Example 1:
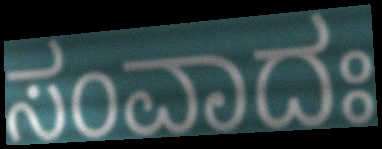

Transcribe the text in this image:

ಸಂವಾದಃ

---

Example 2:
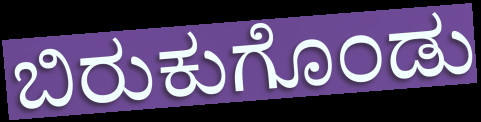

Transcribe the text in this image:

ಬಿರುಕುಗೊಂಡು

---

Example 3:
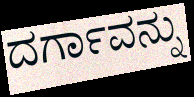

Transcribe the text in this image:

ದರ್ಗಾವನ್ನು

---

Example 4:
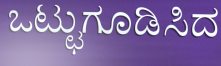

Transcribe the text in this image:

ಒಟ್ಟುಗೂಡಿಸಿದ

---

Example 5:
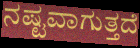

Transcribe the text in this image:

ನಷ್ಟವಾಗುತ್ತದೆ